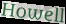
Howell